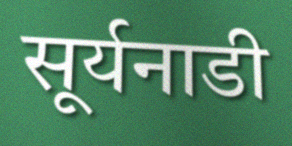
सूर्यनाडी